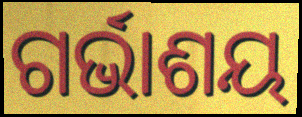
ଗର୍ଭାଶୟ